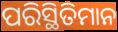
ପରିସ୍ଥିତିମାନ